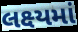
લક્ષ્યમાં